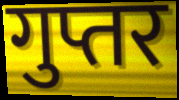
गुप्तर